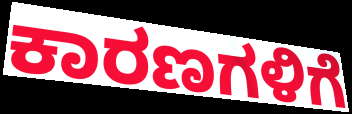
ಕಾರಣಗಳಿಗೆ